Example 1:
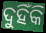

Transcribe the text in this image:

ଦୁହିଁକି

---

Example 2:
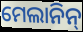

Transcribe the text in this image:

ମେଲାନିନ୍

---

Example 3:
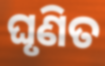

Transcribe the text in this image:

ଘୃଣିତ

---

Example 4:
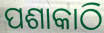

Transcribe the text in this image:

ପଶାକାଠି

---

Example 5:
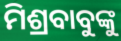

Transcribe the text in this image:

ମିଶ୍ରବାବୁଙ୍କୁ